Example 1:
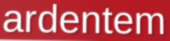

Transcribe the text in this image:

ardentem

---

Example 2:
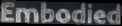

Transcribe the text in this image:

Embodied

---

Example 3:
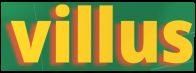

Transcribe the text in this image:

villus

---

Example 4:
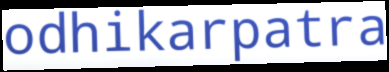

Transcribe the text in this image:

odhikarpatra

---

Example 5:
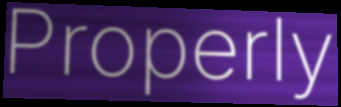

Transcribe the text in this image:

Properly